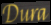
Dura